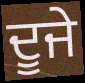
ਦੂਜੇ